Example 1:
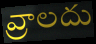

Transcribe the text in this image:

వ్రాలదు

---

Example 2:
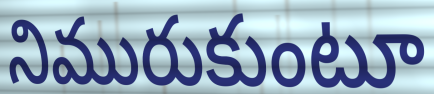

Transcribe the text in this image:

నిమురుకుంటూ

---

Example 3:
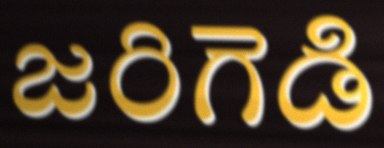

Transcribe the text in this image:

జరిగెడి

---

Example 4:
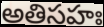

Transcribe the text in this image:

అతిసహః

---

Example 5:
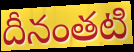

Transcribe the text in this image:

దీనంతటి